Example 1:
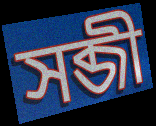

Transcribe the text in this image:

সব্জী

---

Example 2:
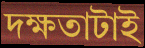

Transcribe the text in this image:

দক্ষতাটাই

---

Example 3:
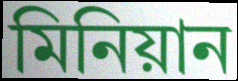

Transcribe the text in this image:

মিনিয়ান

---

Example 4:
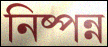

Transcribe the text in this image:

নিষ্পন্ন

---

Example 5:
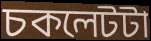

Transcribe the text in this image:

চকলেটটা